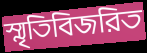
স্মৃতিবিজরিত